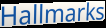
Hallmarks